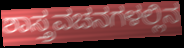
ಶಾಸ್ತ್ರವಚನಗಳಲ್ಲಿನ